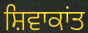
ਸ਼ਿਵਾਕਾਂਤ